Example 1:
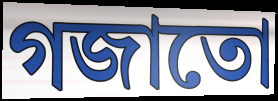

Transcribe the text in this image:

গজাতো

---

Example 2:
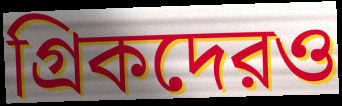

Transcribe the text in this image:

গ্রিকদেরও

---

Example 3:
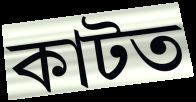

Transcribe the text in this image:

কাটত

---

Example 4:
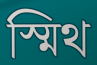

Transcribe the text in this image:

স্মিথ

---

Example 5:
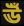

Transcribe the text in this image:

ঊঁ